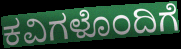
ಕವಿಗಳೊಂದಿಗೆ